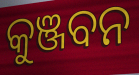
କୁଞ୍ଜବନ